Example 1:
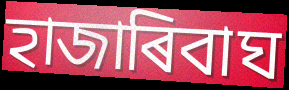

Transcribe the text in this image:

হাজাৰিবাঘ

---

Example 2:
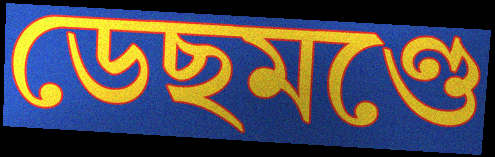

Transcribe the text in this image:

ডেছমণ্ডে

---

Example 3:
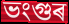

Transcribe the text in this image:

ভংগুৰ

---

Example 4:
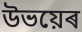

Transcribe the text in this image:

উভয়েৰ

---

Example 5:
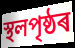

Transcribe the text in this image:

স্থলপৃষ্ঠৰ